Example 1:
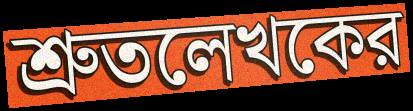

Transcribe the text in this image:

শ্রুতলেখকের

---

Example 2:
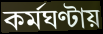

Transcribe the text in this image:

কর্মঘণ্টায়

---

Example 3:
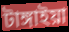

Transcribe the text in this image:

টাঙ্গাইয়া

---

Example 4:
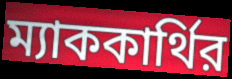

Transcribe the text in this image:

ম্যাককার্থির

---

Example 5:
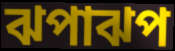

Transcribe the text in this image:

ঝপাঝপ